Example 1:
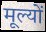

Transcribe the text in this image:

मूल्यों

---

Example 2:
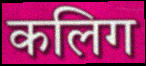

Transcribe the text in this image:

कलिग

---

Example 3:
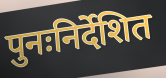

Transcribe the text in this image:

पुनःनिर्देशित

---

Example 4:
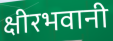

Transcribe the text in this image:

क्षीरभवानी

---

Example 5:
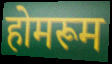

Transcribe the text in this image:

होमरूम